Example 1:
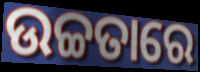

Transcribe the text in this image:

ଉଚ୍ଚତାରେ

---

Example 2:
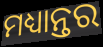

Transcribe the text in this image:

ମଧ୍ୟାନ୍ତର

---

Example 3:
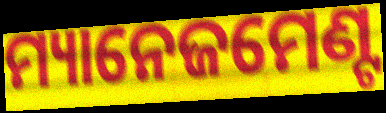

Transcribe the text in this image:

ମ୍ୟାନେଜମେଣ୍ଟ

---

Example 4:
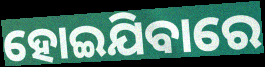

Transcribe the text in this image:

ହୋଇଯିବାରେ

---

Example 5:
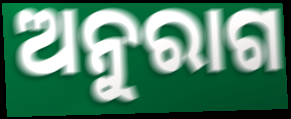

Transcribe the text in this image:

ଅନୁରାଗ